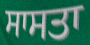
ਸਾਸਤਾ